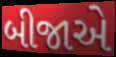
બીજાએ